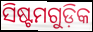
ସିଷ୍ଟମଗୁଡ଼ିକ